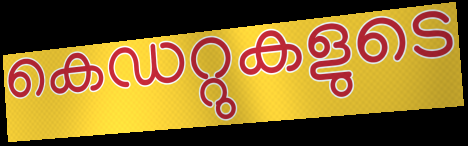
കെഡറ്റുകളുടെ